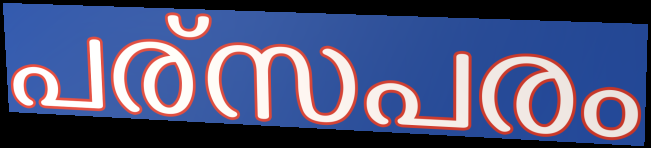
പര്സപരം